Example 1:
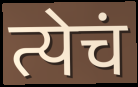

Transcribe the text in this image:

त्येचं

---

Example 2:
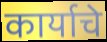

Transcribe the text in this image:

कार्याचे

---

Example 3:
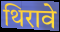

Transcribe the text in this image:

थिरावे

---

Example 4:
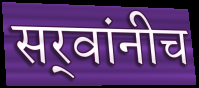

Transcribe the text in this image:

सर्वांनीच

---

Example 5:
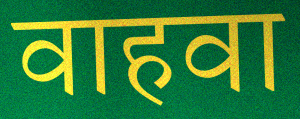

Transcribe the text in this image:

वाहवा